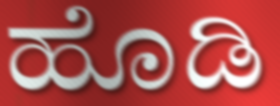
ಹೊಡಿ